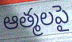
ఆత్మలపై